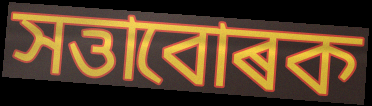
সত্তাবোৰক